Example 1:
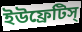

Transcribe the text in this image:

ইউফ্রেটিস্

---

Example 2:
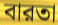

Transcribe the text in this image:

বারতা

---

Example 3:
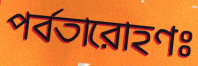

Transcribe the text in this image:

পর্বতারোহণঃ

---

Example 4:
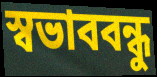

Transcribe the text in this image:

স্বভাববন্ধু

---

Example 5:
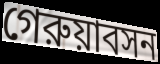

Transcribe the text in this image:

গেরুয়াবসন